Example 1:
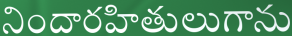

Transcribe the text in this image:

నిందారహితులుగాను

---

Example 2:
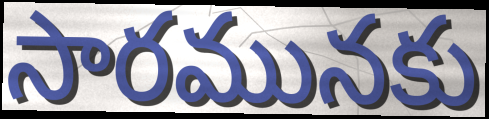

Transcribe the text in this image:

సారమునకు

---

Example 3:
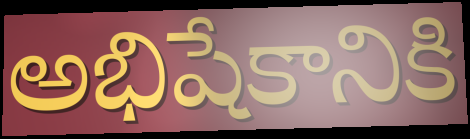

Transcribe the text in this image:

అభిషేకానికి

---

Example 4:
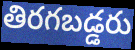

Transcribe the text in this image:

తిరగబడ్డరు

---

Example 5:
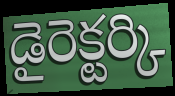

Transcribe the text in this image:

డైరెక్టర్కి